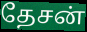
தேசன்